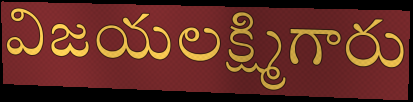
విజయలక్ష్మిగారు